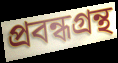
প্ৰবন্ধগ্ৰন্থ